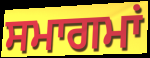
ਸਮਾਗਮਾਂ